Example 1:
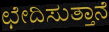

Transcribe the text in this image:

ಛೇದಿಸುತ್ತಾನೆ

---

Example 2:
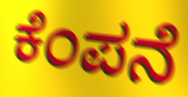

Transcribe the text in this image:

ಕೆಂಪನೆ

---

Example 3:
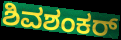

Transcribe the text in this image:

ಶಿವಶಂಕರ್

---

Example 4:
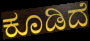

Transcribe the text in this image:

ಕೂಡಿದೆ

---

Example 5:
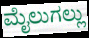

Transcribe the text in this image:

ಮೈಲುಗಲ್ಲು